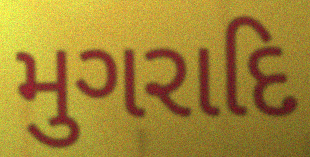
મુગરાદિ